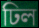
ঢিল